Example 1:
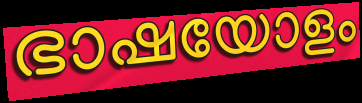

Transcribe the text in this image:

ഭാഷയോളം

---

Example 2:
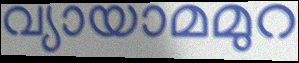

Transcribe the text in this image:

വ്യായാമമുറ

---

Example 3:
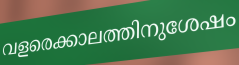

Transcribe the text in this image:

വളരെക്കാലത്തിനുശേഷം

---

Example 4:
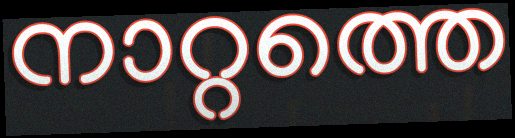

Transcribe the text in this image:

നാറ്റത്തെ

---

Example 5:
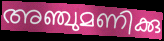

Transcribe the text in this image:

അഞ്ചുമണിക്കു